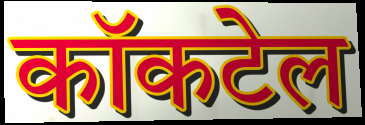
कॉकटेल